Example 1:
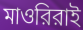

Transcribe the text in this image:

মাওরিরাই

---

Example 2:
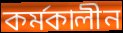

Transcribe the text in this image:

কর্মকালীন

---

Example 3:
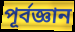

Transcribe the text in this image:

পূর্বজ্ঞান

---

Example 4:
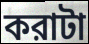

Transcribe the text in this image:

করাটা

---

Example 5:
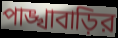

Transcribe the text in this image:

পাঙ্খাবাড়ির